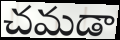
చమడా